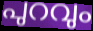
പുറവും